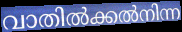
വാതിൽക്കൽനിന്ന